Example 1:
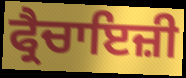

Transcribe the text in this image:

ਫ੍ਰੈਚਾਇਜ਼ੀ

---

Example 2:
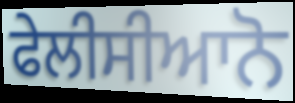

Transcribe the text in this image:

ਫੇਲੀਸੀਆਨੋ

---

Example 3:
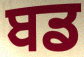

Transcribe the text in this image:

ਬਡ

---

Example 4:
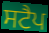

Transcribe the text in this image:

ਸਟੈਪ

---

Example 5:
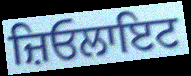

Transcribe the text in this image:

ਜ਼ਿਓਲਾਇਟ